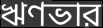
ঋণভার